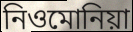
নিওমোনিয়া